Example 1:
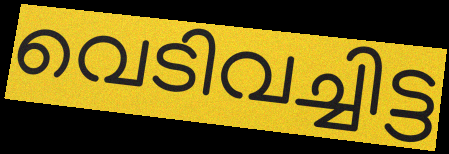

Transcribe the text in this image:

വെടിവച്ചിട്ട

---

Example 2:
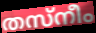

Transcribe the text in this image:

തസ്നീം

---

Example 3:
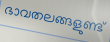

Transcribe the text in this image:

ഭാവതലങ്ങളുണ്ട്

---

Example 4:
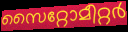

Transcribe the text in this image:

സൈറ്റോമീറ്റർ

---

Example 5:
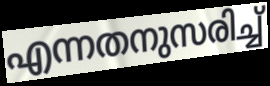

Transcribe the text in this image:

എന്നതനുസരിച്ച്